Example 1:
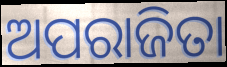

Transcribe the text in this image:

ଅପରାଜିତା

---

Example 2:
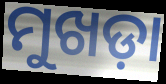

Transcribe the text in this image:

ମୁଖଡ଼ା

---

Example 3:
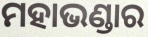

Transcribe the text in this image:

ମହାଭଣ୍ଡାର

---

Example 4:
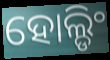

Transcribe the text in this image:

ହୋଲ୍ଡିଂ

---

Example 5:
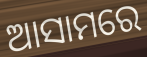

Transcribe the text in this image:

ଆସାମରେ